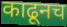
काढूनच